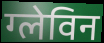
ग्लेविन